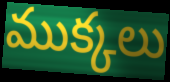
ముక్కలు